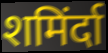
शमिंर्दा